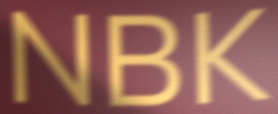
NBK